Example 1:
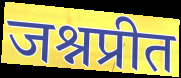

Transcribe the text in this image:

जश्नप्रीत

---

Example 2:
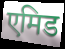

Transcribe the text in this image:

एमिड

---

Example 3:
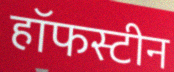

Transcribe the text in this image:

हॉफस्टीन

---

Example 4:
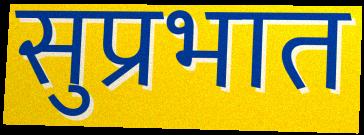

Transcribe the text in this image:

सुप्रभात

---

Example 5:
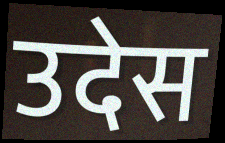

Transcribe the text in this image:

उदेस